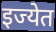
इज्येत